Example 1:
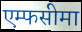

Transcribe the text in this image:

एम्फसीमा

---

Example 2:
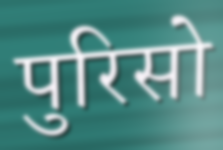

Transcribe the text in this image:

पुरिसो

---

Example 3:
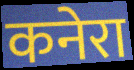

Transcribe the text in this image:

कनेरा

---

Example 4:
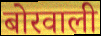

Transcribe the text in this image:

बोरवाली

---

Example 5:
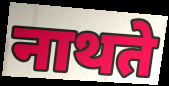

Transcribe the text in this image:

नाथते